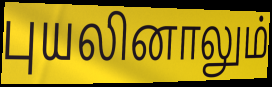
புயலினாலும்